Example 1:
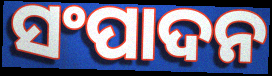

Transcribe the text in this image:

ସଂପାଦନ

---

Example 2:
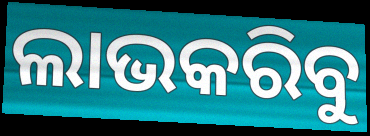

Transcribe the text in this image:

ଲାଭକରିବୁ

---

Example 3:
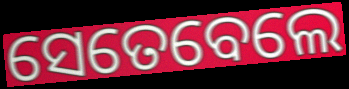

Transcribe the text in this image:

ସେତେବେଲେ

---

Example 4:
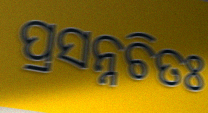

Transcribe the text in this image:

ପ୍ରସନ୍ନଚିତଃ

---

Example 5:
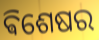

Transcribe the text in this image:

ଵିଶେଷର